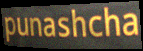
punashcha